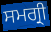
ਸਮਗ੍ਰੀ